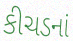
કીચડનાં